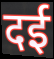
दई